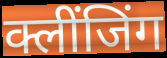
क्लींजिंग